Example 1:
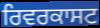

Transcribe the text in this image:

ਰਿਵਰਕਾਸਟ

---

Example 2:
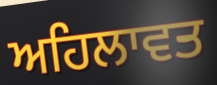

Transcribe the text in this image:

ਅਹਿਲਾਵਤ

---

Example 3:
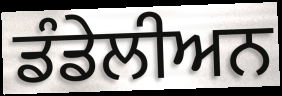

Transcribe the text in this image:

ਡੰਡੇਲੀਅਨ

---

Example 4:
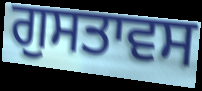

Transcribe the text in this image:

ਗੁਸਤਾਵਸ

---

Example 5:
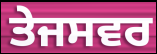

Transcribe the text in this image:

ਤੇਜਸਵਰ